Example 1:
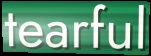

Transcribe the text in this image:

tearful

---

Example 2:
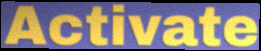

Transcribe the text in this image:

Activate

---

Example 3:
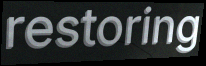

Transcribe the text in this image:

restoring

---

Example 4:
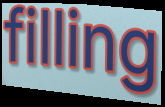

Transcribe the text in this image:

filling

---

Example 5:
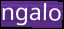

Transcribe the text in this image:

ngalo